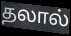
தலால்